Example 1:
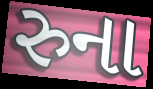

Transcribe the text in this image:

રુના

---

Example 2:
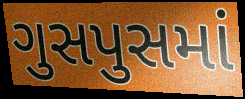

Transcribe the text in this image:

ગુસપુસમાં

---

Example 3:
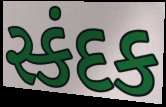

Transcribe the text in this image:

સ્કંદક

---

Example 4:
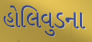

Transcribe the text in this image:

હોલિવુડના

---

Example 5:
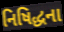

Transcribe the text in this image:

નિષિદ્ધના